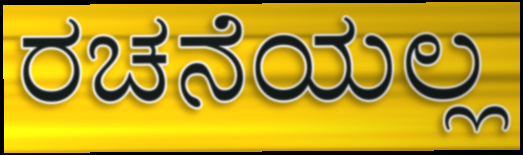
ರಚನೆಯಲ್ಲ